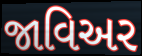
જાવિઅર